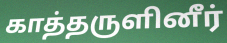
காத்தருளினீர்